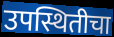
उपस्थितीचा